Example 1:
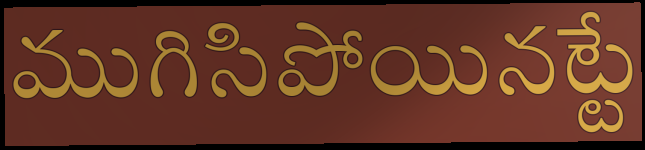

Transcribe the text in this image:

ముగిసిపోయినట్టే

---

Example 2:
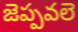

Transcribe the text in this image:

జెప్పవలె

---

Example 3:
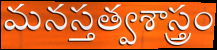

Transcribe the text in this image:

మనస్తత్వశాస్త్రం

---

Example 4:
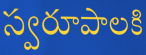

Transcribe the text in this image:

స్వరూపాలకి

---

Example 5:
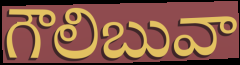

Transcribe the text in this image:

గౌలిబువా